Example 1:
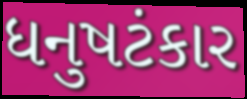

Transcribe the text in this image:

ધનુષટંકાર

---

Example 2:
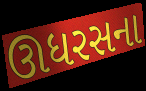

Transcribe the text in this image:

ઊધરસના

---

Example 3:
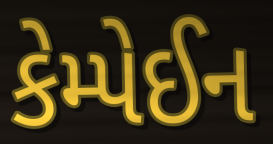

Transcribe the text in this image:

કેમ્પેઈન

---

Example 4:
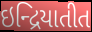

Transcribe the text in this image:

ઇન્દ્રિયાતીત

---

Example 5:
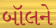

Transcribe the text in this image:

બૉલને